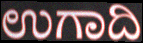
ಉಗಾದಿ